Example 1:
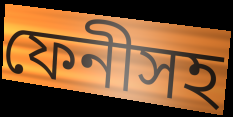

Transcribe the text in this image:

ফেনীসহ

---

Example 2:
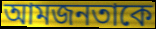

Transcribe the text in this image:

আমজনতাকে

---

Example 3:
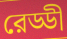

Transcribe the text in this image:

রেড্ডী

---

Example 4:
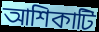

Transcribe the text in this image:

আশিকাটি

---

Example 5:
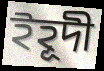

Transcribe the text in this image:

ইহূদী